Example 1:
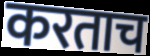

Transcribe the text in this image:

करताच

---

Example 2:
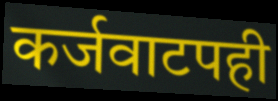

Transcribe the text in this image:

कर्जवाटपही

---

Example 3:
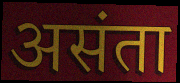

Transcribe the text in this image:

असंता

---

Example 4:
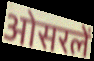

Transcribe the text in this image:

ओसरलें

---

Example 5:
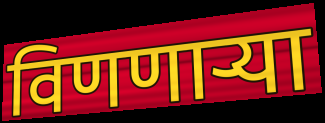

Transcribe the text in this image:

विणणाऱ्या